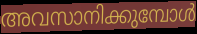
അവസാനിക്കുമ്പോൾ